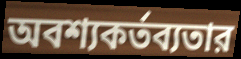
অবশ্যকর্তব্যতার